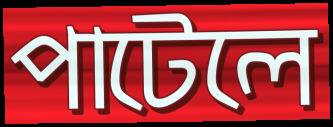
পাটেলে